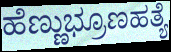
ಹೆಣ್ಣುಭ್ರೂಣಹತ್ಯೆ